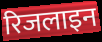
रिजलाइन